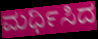
ಮರ್ಧಿಸಿದ